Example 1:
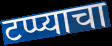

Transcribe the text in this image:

टप्प्याचा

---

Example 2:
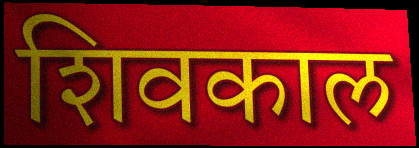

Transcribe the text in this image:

शिवकाल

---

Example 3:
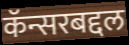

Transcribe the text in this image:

कॅन्सरबद्दल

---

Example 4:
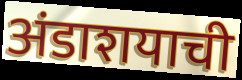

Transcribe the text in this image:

अंडाशयाची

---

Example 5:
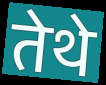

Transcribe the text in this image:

तेथे